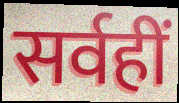
सर्वहीं